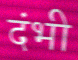
दंभी